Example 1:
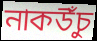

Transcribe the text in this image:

নাকউঁচু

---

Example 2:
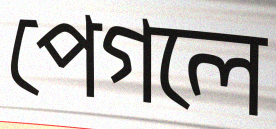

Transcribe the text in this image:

পেগলে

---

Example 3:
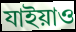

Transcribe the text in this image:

যাইয়াও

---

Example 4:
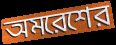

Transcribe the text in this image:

অমরেশের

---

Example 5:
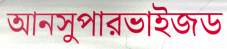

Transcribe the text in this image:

আনসুপারভাইজড